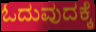
ಓದುವುದಕ್ಕೆ